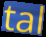
tal